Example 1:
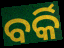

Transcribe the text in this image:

ବର୍କି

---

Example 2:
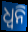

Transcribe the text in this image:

ଧ୍ବନି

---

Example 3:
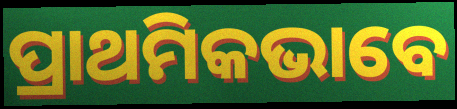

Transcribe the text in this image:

ପ୍ରାଥମିକଭାବେ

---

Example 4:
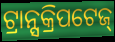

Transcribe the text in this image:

ଟ୍ରାନ୍ସକ୍ରିପଟେଜ୍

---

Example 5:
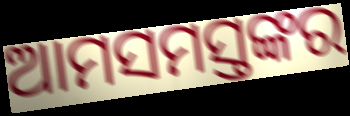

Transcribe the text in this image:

ଆମସମସ୍ତଙ୍କର